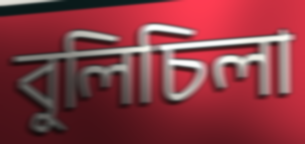
বুলিচিলা